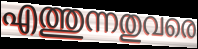
എത്തുന്നതുവരെ